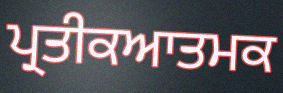
ਪ੍ਰਤੀਕਆਤਮਕ